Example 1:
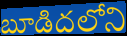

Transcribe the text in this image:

బూడిదలోని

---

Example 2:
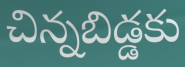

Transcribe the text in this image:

చిన్నబిడ్డకు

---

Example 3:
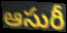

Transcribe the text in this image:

ఆసురీ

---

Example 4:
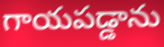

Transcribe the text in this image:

గాయపడ్డాను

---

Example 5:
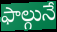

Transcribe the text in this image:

ఫాల్గునే